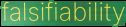
falsifiability